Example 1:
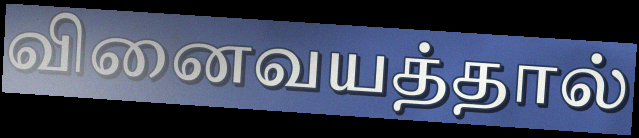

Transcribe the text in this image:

வினைவயத்தால்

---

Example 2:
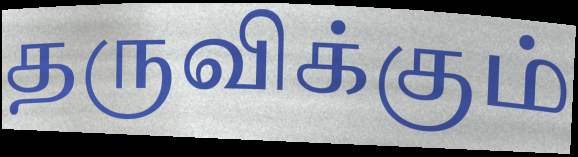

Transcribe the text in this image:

தருவிக்கும்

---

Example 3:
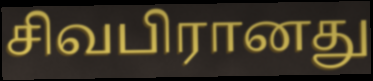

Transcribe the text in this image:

சிவபிரானது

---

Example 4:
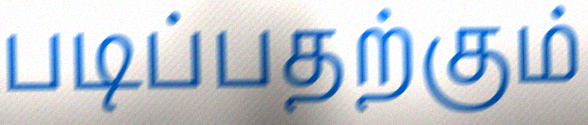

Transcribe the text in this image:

படிப்பதற்கும்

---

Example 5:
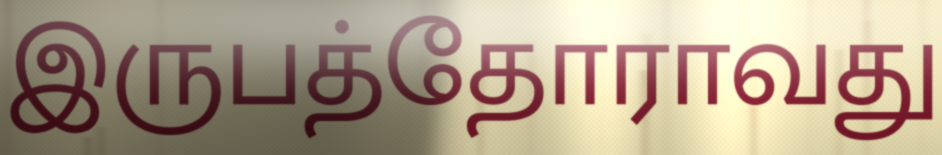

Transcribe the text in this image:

இருபத்தோராவது